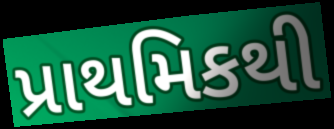
પ્રાથમિકથી